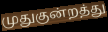
முதுகுன்றத்து